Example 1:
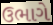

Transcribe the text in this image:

ઉભાગે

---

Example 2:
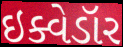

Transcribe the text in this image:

ઇક્વેડૉર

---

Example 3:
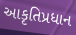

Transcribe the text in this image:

આકૃતિપ્રધાન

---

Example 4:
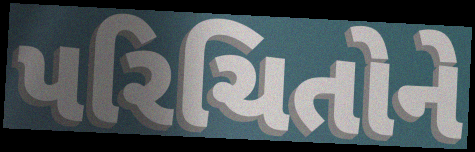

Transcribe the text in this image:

પરિચિતોને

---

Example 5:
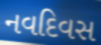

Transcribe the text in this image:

નવદિવસ